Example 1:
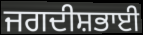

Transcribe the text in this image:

ਜਗਦੀਸ਼ਭਾਈ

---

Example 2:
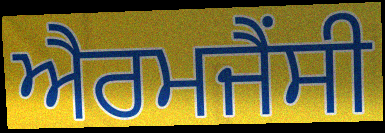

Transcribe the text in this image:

ਐਰਮਜੈਂਸੀ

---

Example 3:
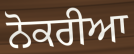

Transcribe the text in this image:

ਨੋਕਰੀਆ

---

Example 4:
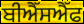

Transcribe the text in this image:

ਬੀਐੱਸਐੱਫ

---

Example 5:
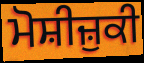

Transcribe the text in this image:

ਮੋਸ਼ੀਜ਼ੁਕੀ